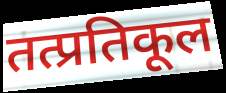
तत्प्रतिकूल